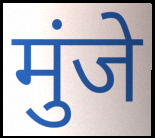
मुंजे